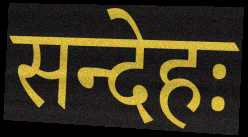
सन्देहः